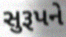
સુરૂપને